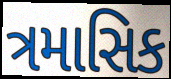
ત્રમાસિક